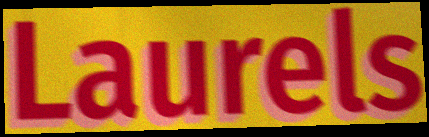
Laurels